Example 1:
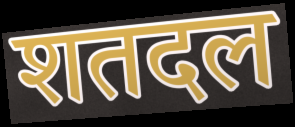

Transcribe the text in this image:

शतदल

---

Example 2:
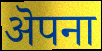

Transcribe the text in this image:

ऄपना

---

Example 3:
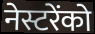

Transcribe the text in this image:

नेस्टरेंको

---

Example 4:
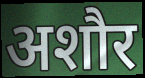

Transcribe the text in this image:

अशौर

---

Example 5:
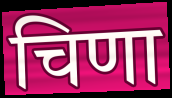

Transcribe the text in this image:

चिणा